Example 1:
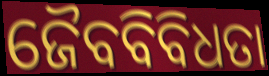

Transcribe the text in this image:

ଜୈବବିବିଧତା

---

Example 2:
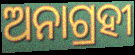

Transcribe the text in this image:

ଅନାଗ୍ରହୀ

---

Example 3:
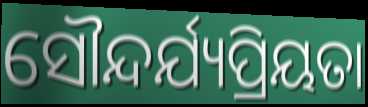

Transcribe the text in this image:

ସୌନ୍ଦର୍ଯ୍ୟପ୍ରିୟତା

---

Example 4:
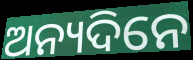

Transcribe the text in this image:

ଅନ୍ୟଦିନେ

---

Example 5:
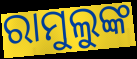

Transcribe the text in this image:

ରାମୁଲୁଙ୍କ